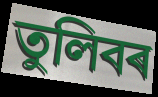
তুলিবৰ